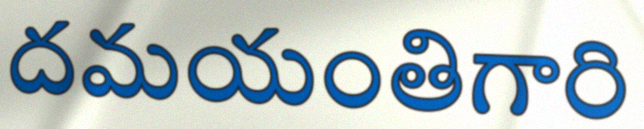
దమయంతిగారి